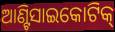
ଆଣ୍ଟିସାଇକୋଟିକ୍